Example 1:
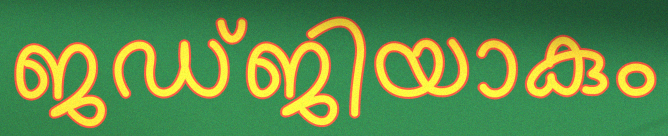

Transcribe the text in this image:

ജഡ്ജിയാകും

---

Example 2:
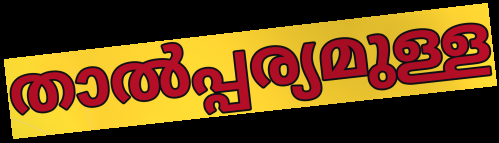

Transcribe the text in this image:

താൽപ്പര്യമുള്ള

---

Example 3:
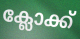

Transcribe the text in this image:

ക്ലോക്ക്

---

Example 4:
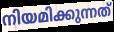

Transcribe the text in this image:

നിയമിക്കുന്നത്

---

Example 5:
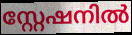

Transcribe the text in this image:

സ്റ്റേഷനിൽ